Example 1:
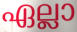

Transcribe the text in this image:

ഏല്ലാ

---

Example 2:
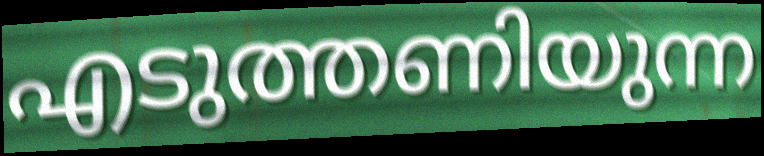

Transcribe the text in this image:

എടുത്തണിയുന്ന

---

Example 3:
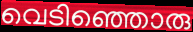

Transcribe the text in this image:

വെടിഞ്ഞൊരു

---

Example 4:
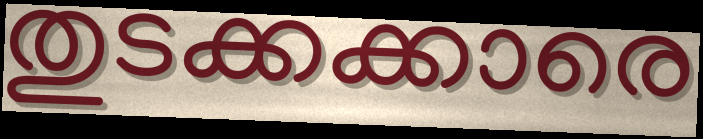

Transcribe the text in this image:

തുടക്കക്കാരെ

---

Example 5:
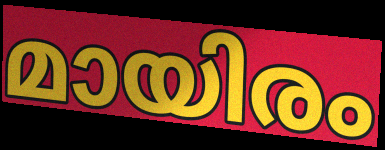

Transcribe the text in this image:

മായിരം